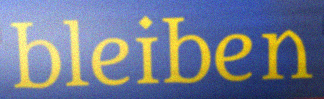
bleiben